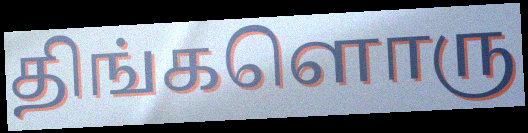
திங்களொரு